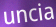
uncia